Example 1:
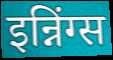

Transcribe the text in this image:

इन्निंग्स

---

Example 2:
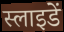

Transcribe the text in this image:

स्लाइडें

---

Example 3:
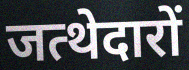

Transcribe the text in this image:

जत्थेदारों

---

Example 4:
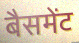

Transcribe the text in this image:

बैसमेंट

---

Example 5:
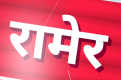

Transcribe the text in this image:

रामेर